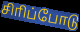
சிரிப்போடு